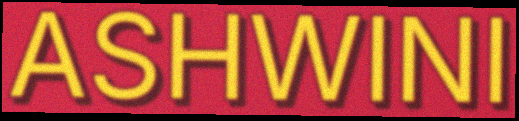
ASHWINI